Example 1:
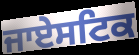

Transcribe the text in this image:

ਜਾਏਸਟਿਕ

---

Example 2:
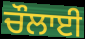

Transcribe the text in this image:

ਚੌਲਾਈ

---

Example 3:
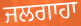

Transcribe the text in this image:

ਜਲਗਾਹਾ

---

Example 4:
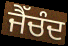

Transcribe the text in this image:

ਜੈੱਚੰਦ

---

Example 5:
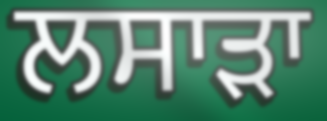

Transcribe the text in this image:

ਲਸਾੜਾ